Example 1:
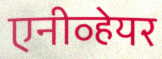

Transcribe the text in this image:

एनीव्हेयर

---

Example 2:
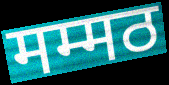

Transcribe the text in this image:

मम्मठ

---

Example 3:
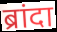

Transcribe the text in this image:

ब्रांदा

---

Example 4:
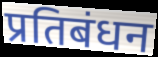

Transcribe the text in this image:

प्रतिबंधन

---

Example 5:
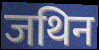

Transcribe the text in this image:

जथिन